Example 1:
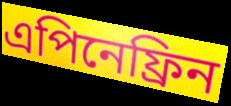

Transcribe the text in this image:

এপিনেফ্রিন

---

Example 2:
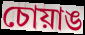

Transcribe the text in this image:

চোয়াঙ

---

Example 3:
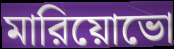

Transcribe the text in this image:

মারিয়োভো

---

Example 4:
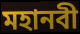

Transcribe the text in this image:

মহানবী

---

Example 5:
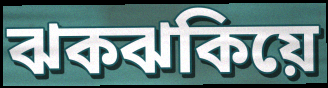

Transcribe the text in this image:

ঝকঝকিয়ে